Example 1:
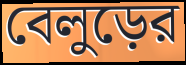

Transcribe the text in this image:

বেলুড়ের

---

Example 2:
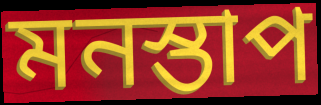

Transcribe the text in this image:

মনস্তাপ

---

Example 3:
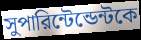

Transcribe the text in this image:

সুপারিন্টেন্ডেন্টকে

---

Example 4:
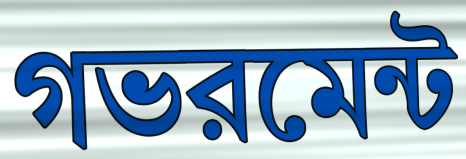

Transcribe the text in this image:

গভরমেন্ট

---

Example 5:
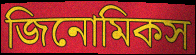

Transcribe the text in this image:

জিনোমিকস